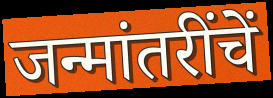
जन्मांतरींचें